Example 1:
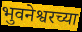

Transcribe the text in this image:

भुवनेश्वरच्या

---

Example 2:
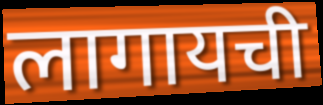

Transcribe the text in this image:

लागायची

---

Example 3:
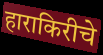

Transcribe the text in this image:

हाराकिरीचे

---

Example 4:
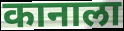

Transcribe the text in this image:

कानाला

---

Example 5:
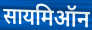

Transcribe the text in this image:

सायमिऑन